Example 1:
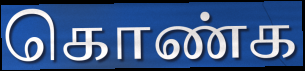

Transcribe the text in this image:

கொண்க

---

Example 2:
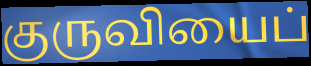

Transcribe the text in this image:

குருவியைப்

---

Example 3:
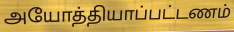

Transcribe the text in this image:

அயோத்தியாப்பட்டணம்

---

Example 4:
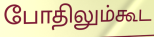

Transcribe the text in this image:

போதிலும்கூட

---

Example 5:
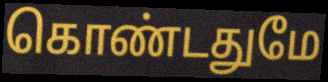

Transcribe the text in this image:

கொண்டதுமே